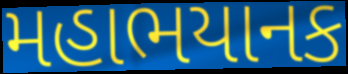
મહાભયાનક